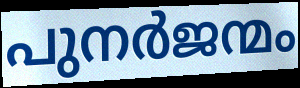
പുനർജന്മം